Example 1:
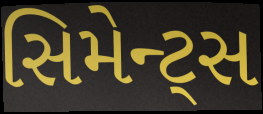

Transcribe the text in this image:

સિમેન્ટ્સ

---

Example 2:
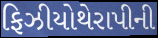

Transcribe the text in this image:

ફિઝીયોથેરાપીની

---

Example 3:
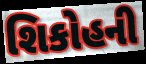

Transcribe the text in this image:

શિકોહની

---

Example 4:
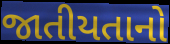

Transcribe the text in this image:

જાતીયતાનો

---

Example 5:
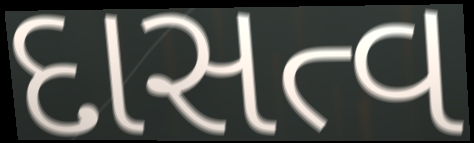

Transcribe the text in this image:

દાસત્વ